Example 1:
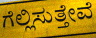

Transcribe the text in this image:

ಗೆಲ್ಲಿಸುತ್ತೇವೆ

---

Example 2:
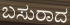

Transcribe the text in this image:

ಬಸುರಾದ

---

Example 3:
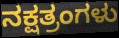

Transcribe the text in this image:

ನಕ್ಷತ್ರಂಗಳು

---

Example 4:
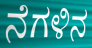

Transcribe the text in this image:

ನೆಗಳಿನ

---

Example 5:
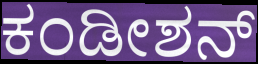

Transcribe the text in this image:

ಕಂಡೀಶನ್